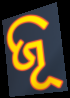
ଜୂ